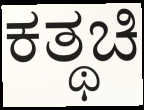
ಕತ್ಥಚಿ